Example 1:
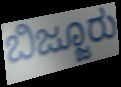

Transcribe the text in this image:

ಬಿಜ್ಜೂರು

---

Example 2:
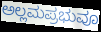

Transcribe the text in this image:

ಅಲ್ಲಮಪ್ರಭುವೂ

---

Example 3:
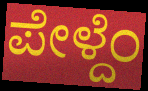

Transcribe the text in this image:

ಪೇಳ್ದೆಂ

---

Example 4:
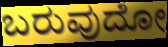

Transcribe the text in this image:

ಬರುವುದೋ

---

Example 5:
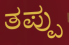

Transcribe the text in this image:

ತಪ್ಪು